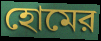
হোমের